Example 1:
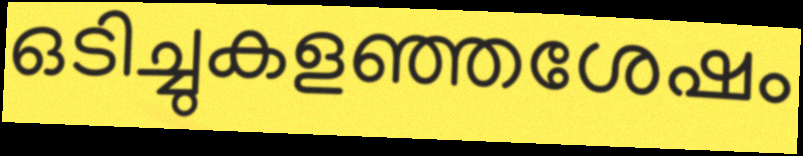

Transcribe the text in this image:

ഒടിച്ചുകളഞ്ഞശേഷം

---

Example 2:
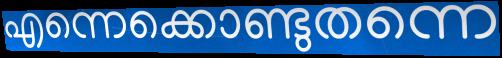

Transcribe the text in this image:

എന്നെക്കൊണ്ടുതന്നെ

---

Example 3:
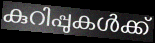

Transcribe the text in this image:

കുറിപ്പുകൾക്ക്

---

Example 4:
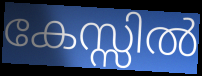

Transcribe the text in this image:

കേസ്സിൽ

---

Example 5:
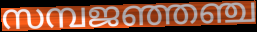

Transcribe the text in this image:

സമ്പജഞ്ഞഞ്ച